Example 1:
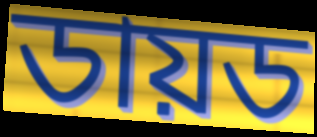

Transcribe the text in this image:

ডায়ড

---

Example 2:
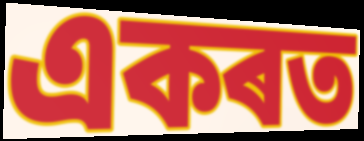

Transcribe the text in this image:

একৰত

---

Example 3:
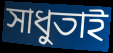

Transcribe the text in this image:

সাধুতাই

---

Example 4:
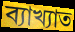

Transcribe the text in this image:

ব্যাখ্যাত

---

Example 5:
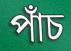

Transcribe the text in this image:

পাঁচ